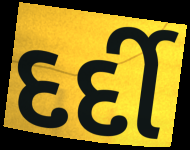
દર્દી